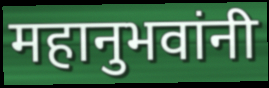
महानुभवांनी